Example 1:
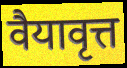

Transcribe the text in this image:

वैयावृत्त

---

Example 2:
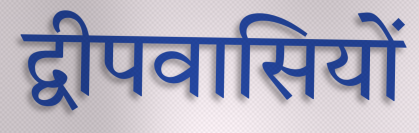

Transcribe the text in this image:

द्वीपवासियों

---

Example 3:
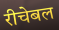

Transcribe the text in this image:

रीचेबल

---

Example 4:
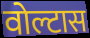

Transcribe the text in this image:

वोल्टास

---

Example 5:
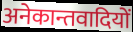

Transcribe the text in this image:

अनेकान्तवादियों